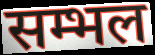
सम्भल